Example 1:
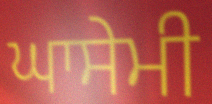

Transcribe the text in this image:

ਘਾਸੇਮੀ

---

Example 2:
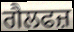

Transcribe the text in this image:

ਗੈਲਫਜ਼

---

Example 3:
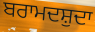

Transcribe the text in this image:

ਬਰਾਮਦਸ਼ੁਦਾ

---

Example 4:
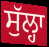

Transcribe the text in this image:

ਸੁੱਲ੍ਹਾ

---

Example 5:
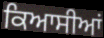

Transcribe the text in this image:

ਕਿਆਸੀਆਂ